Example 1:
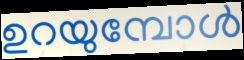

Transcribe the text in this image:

ഉറയുമ്പോൾ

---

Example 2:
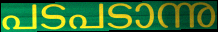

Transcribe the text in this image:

പടപടാന്നു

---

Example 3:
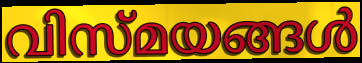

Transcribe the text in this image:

വിസ്മയങ്ങൾ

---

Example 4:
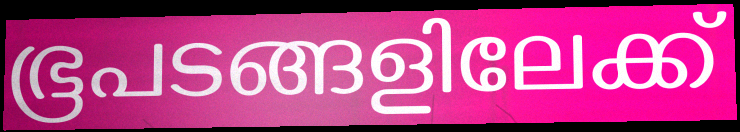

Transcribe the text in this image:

ഭൂപടങ്ങളിലേക്ക്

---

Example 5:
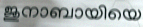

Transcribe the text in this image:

ജുനാബായിയെ